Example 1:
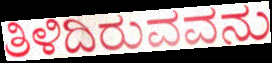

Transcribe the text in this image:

ತಿಳಿದಿರುವವನು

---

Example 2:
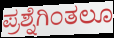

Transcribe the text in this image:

ಪ್ರಶ್ನೆಗಿಂತಲೂ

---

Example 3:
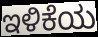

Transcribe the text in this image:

ಇಳಿಕೆಯ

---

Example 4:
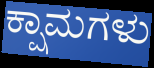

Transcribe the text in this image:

ಕ್ಷಾಮಗಳು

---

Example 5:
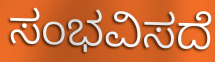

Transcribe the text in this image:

ಸಂಭವಿಸದೆ